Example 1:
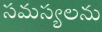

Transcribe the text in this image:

సమస్యలను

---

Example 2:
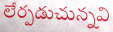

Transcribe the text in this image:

లేర్పడుచున్నవి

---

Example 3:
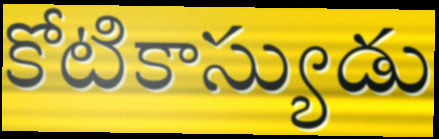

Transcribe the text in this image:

కోటికాస్యుడు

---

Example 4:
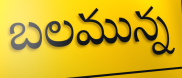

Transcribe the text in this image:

బలమున్న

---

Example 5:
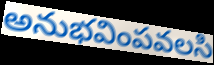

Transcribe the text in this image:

అనుభవింపవలసి